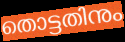
തൊട്ടതിനും